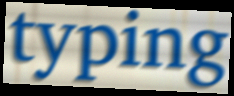
typing